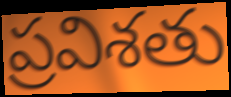
ప్రవిశతు